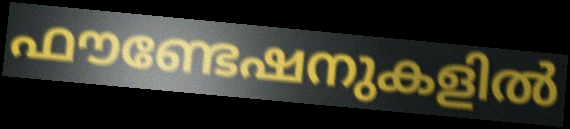
ഫൗണ്ടേഷനുകളിൽ